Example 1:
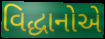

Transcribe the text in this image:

વિદ્ધાનોએ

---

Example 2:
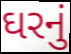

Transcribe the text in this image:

ઘરનું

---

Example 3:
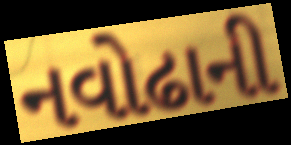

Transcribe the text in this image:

નવોઢાની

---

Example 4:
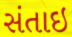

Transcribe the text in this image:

સંતાઇ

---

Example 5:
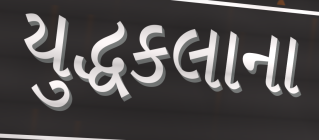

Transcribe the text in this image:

યુદ્ધકલાના